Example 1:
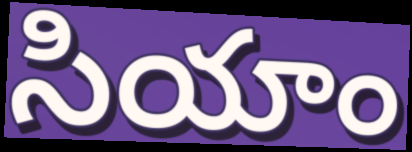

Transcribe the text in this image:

సియాం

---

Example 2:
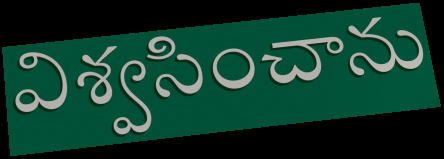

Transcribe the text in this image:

విశ్వసించాను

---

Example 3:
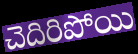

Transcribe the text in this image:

చెదిరిపోయి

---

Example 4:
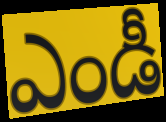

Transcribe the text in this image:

ఎండీ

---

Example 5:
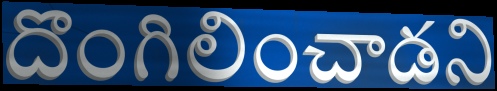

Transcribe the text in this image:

దొంగిలించాడని